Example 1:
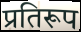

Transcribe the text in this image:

प्रतिरूप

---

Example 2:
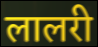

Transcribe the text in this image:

लालरी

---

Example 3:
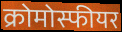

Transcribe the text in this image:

क्रोमोस्फीयर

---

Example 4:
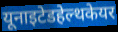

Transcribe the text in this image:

यूनाइटेडहेल्थकेयर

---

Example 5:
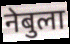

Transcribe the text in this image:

नेबुला